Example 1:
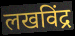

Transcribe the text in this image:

लखविंद्र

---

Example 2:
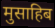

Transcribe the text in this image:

मुसाहिब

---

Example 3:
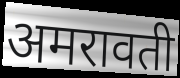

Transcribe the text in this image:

अमरावती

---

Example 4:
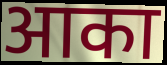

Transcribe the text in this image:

आका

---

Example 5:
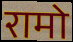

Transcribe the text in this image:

रामो